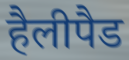
हैलीपैड